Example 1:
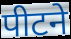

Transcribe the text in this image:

पीटने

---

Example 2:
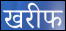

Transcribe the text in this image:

खरीफ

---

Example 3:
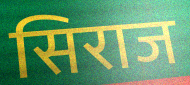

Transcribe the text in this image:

सिराज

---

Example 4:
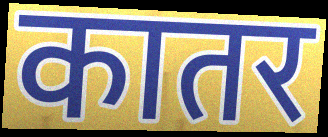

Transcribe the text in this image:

कातर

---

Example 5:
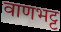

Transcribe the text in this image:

वाणभट्ट